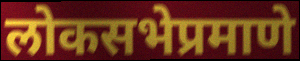
लोकसभेप्रमाणे